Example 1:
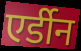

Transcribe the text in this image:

एर्डीन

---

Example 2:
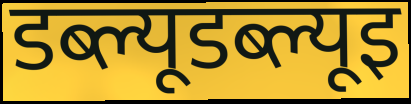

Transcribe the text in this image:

डब्ल्यूडब्ल्यूइ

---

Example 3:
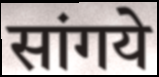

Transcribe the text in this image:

सांगये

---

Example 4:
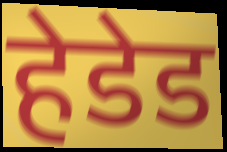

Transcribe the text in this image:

हेडेड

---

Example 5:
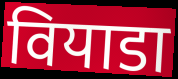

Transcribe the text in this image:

वियाडा